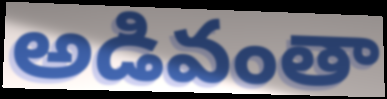
అడివంతా